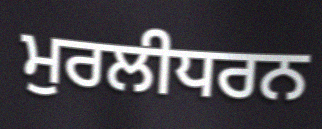
ਮੁਰਲੀਧਰਨ